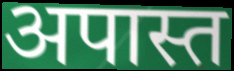
अपास्‍त